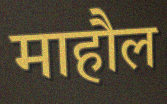
माहौल